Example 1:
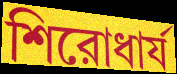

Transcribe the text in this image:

শিরোধার্য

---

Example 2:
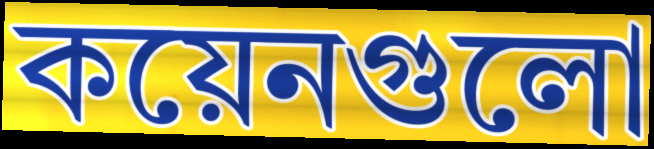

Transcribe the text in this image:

কয়েনগুলো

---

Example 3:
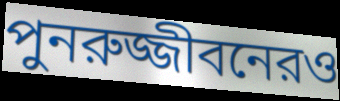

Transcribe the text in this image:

পুনরুজ্জীবনেরও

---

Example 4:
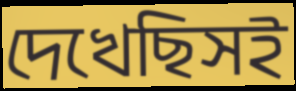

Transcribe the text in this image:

দেখেছিসই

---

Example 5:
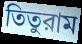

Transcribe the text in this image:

তিতুরাম